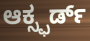
ಆಕ್ಸ್ಫರ್ಡ್